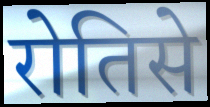
रोतिसे